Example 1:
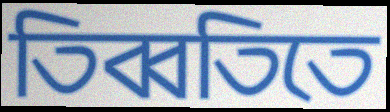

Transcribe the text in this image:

তিব্বতিতে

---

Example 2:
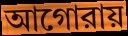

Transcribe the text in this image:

আগোরায়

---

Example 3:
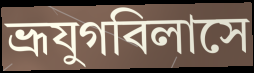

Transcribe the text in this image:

ভ্রূযুগবিলাসে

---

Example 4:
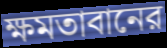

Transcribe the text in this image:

ক্ষমতাবানের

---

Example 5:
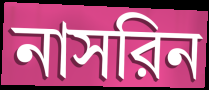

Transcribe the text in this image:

নাসরিন